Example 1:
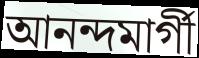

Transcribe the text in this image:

আনন্দমার্গী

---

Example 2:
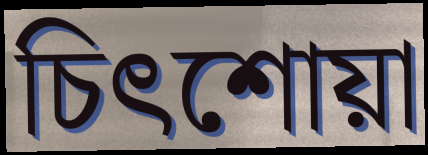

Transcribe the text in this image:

চিৎশোয়া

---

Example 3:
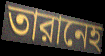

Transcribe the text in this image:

তারানেহ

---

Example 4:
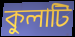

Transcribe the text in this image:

কুলাটি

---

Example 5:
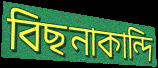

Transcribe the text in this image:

বিছনাকান্দি